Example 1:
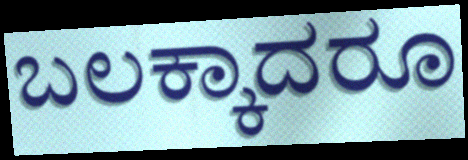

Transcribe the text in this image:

ಬಲಕ್ಕಾದರೂ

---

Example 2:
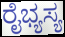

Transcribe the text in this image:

ರೈಭ್ಯಸ್ಯ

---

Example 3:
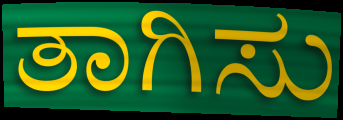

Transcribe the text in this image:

ತಾಗಿಸು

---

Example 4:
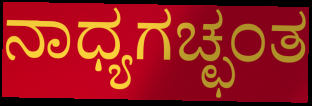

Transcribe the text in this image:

ನಾಧ್ಯಗಚ್ಛಂತ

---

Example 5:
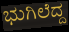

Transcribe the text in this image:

ಭುಗಿಲೆದ್ದ